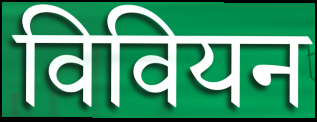
विवियन